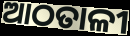
ଆଠତାଳୀ